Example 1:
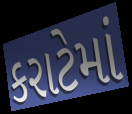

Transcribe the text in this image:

કરાટેમાં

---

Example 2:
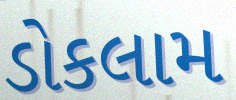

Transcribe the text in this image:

ડોકલામ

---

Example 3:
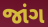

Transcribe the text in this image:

જાંગ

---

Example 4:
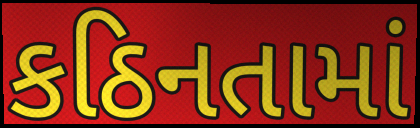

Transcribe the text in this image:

કઠિનતામાં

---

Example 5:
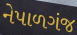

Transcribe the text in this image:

નેપાળગંજ